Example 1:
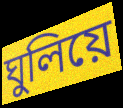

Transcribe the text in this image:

ঘুলিয়ে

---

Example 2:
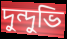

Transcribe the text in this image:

দুন্দুভি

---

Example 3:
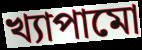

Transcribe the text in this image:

খ্যাপামো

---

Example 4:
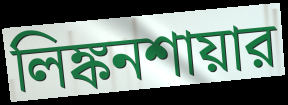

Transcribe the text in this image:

লিঙ্কনশায়ার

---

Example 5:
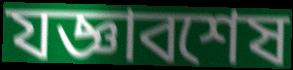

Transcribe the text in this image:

যজ্ঞাবশেষ